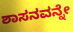
ಶಾಸನವನ್ನೇ